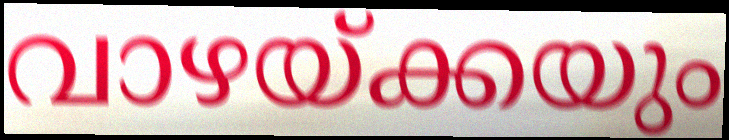
വാഴയ്ക്കയും